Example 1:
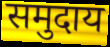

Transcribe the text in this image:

समुदाय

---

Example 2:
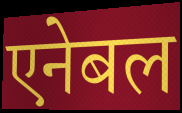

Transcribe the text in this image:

एनेबल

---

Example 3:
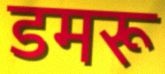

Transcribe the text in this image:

डमरू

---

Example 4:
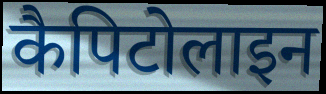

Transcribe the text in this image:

कैपिटोलाइन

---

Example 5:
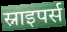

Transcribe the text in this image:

स्नाइपर्स